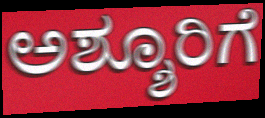
ಅಶ್ಶೂರಿಗೆ